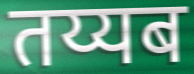
तय्यब